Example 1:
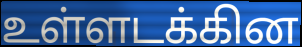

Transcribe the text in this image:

உள்ளடக்கின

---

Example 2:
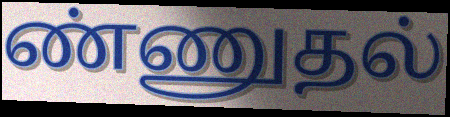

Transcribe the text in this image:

ண்ணுதல்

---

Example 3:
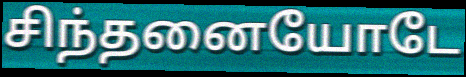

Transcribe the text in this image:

சிந்தனையோடே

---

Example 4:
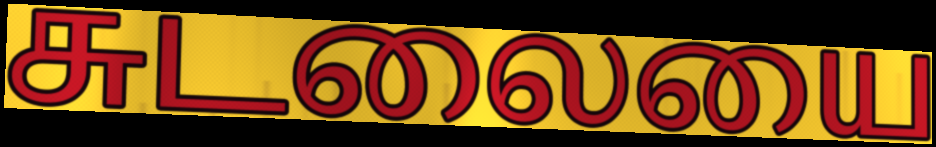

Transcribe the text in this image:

சுடலையை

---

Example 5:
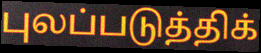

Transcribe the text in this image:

புலப்படுத்திக்